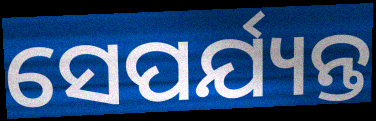
ସେପର୍ଯ୍ୟନ୍ତ